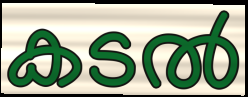
കടൽ